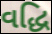
વદ્ધિ